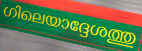
ഗിലെയാദ്ദേശത്തു